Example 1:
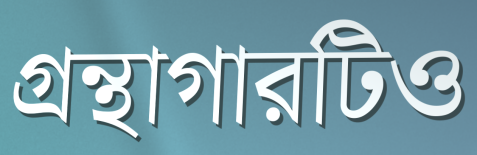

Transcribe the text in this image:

গ্রন্থাগারটিও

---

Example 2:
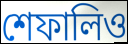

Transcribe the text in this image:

শেফালিও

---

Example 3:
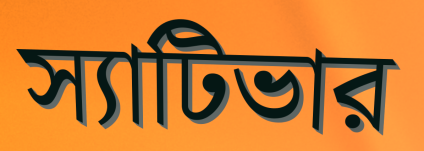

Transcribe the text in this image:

স্যাটিভার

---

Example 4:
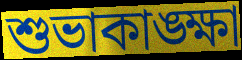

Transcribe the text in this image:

শুভাকাঙ্ক্ষা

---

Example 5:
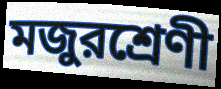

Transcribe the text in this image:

মজুরশ্রেণী